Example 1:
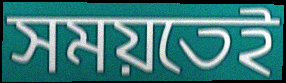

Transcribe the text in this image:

সময়তেই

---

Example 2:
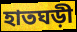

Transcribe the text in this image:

হাতঘড়ী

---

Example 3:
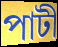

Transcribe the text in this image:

পাটী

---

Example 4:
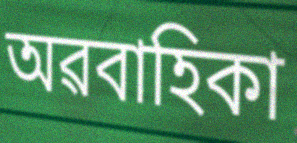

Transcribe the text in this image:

অৱবাহিকা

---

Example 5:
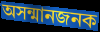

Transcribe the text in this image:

অসন্মানজনক